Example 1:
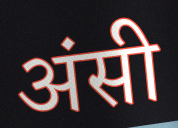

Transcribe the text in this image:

अंसी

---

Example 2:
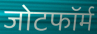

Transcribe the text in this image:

जोटफॉर्म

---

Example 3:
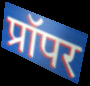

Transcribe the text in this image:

प्रॉपर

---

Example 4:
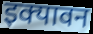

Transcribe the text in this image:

इक्‍यावन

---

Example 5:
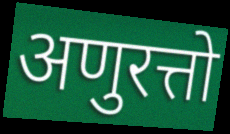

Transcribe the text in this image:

अणुरत्तो